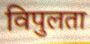
विपुलता